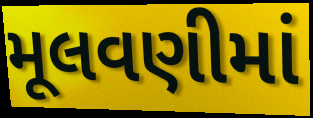
મૂલવણીમાં